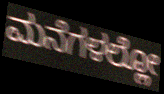
ಮನೆಗಳಲ್ಲೋ